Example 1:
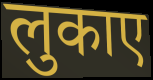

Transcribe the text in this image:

लुकाए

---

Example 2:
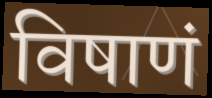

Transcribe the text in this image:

विषाणं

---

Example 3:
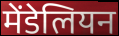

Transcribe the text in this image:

मेंडेलियन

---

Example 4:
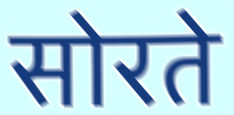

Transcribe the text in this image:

सोरते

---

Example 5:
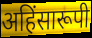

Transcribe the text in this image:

अहिंसारूपी